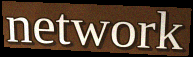
network